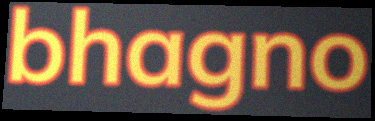
bhagno